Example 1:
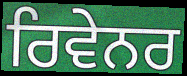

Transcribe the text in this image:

ਰਿਵੇਨਰ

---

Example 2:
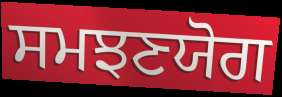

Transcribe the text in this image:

ਸਮਝਣਯੋਗ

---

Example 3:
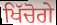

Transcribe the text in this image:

ਖਿੱਚੋਗੇ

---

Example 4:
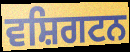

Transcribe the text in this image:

ਵਸ਼ਿਗਟਨ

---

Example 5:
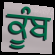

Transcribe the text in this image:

ਕੂੰਬ